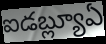
ఐడబ్ల్యూఏ